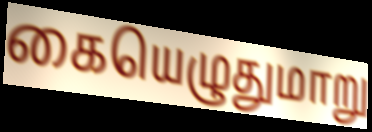
கையெழுதுமாறு